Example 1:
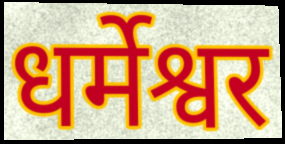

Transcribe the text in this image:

धर्मेश्वर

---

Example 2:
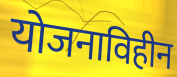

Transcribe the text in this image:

योजनाविहीन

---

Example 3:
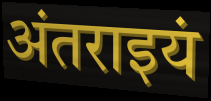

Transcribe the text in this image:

अंतराइयं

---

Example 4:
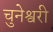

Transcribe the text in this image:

चुनेश्वरी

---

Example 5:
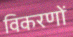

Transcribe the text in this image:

विकरणों